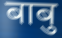
बाबु